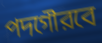
পদগৌরবে